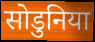
सोडुनिया